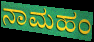
ನಾಮಹಂ